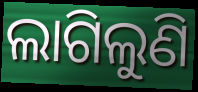
ଲାଗିଲୁଣି